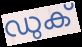
ഡുക്